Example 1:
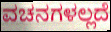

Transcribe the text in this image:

ವಚನಗಳಲ್ಲದೆ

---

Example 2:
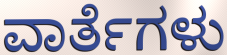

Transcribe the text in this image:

ವಾರ್ತೆಗಳು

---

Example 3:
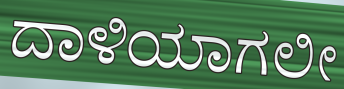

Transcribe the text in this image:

ದಾಳಿಯಾಗಲೀ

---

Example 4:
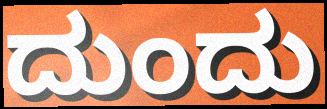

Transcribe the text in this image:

ದುಂದು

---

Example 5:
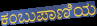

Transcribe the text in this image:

ಕಂಬುಪಾಣಿಯ